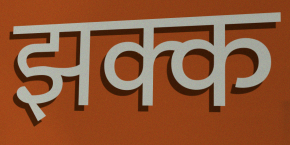
झक्क